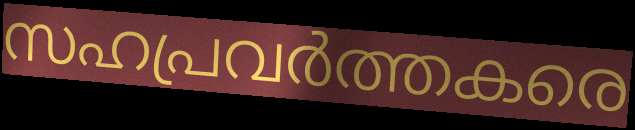
സഹപ്രവർത്തകരെ